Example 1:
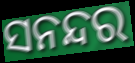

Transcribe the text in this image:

ସନନ୍ଦର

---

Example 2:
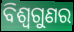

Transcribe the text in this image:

ବିଶ୍ୱଗୁଣର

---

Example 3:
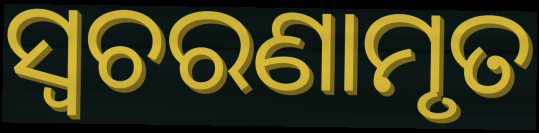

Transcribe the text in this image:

ସ୍ଵଚରଣାମୃତ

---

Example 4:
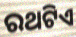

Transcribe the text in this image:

ରଥଟିଏ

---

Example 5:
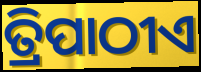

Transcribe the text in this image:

ତ୍ରିପାଠୀଏ